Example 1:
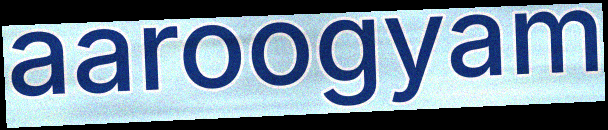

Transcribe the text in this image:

aaroogyam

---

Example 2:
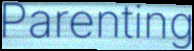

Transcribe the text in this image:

Parenting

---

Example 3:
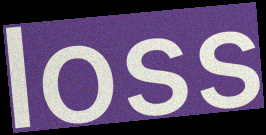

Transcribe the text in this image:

loss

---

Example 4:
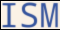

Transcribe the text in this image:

ISM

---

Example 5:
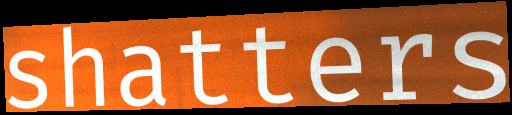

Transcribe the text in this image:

shatters